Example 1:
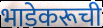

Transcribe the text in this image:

भाडेकरूची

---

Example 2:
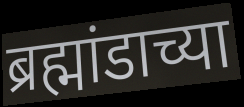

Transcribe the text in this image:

ब्रह्मांडाच्या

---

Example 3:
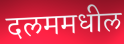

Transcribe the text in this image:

दलममधील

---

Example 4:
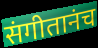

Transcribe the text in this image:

संगीतानंच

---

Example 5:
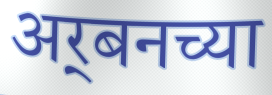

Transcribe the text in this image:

अर्बनच्या